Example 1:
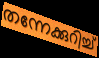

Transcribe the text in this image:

തന്നേക്കുറിച്ച്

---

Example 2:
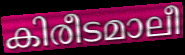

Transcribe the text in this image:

കിരീടമാലീ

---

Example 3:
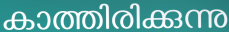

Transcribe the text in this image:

കാത്തിരിക്കുന്നു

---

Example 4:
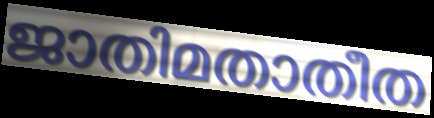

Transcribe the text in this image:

ജാതിമതാതീത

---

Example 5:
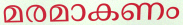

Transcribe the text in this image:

മരമാകണം